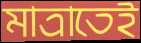
মাত্রাতেই